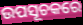
ଉପସୂଚକରେ